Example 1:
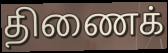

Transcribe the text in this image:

திணைக்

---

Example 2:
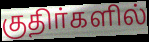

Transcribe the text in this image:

குதிர்களில்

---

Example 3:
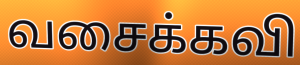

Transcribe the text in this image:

வசைக்கவி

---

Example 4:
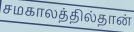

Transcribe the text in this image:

சமகாலத்தில்தான்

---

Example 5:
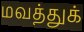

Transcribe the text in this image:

மவத்துக்